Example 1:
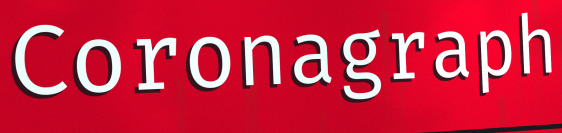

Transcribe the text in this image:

Coronagraph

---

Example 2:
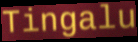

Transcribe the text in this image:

Tingalu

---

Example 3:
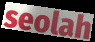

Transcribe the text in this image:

seolah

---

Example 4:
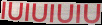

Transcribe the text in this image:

IUIUIUIU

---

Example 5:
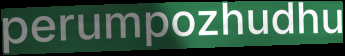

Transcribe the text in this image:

perumpozhudhu